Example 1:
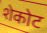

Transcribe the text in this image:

शेकोट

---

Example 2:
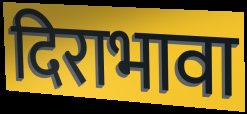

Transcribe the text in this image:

दिराभावा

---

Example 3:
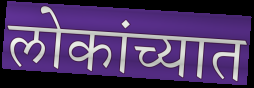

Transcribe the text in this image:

लोकांच्यात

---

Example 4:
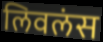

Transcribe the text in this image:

लिवलंस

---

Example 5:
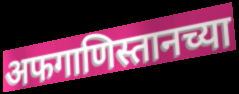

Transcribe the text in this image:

अफगाणिस्तानच्या